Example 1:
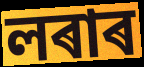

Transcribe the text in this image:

লৰাৰ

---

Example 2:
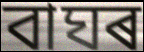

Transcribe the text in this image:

বাঘৰ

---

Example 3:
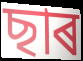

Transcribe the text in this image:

ছাৰ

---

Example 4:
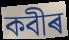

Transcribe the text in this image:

কবীৰ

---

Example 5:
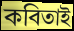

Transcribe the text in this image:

কবিতাই